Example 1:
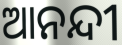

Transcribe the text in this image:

ଆନନ୍ଦୀ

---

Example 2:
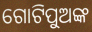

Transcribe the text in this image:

ଗୋଟିପୁଅଙ୍କ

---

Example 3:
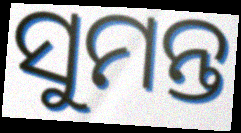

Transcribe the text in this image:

ସୁମନ୍ତ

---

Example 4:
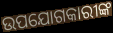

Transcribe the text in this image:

ଉପଯୋଗକାରୀଙ୍କ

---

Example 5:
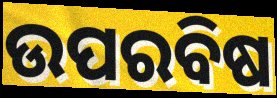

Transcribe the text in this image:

ଉପରବିଷ